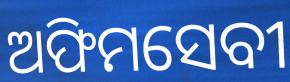
ଅଫିମସେବୀ